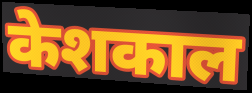
केशकाल